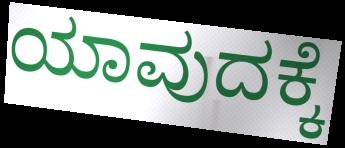
ಯಾವುದಕ್ಕೆ